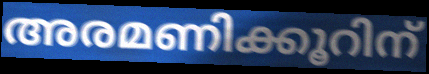
അരമണിക്കൂറിന്